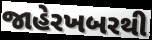
જાહેરખબરથી